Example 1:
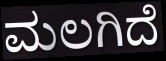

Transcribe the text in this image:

ಮಲಗಿದೆ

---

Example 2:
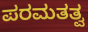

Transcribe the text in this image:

ಪರಮತತ್ವ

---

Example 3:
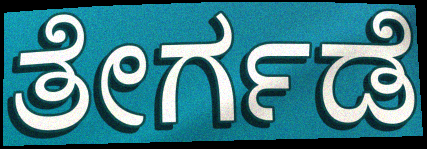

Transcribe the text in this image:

ತೇರ್ಗಡೆ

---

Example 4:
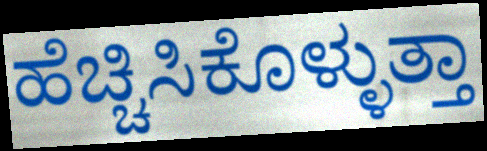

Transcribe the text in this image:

ಹೆಚ್ಚಿಸಿಕೊಳ್ಳುತ್ತಾ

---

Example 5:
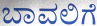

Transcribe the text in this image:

ಬಾವಲಿಗೆ